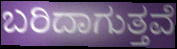
ಬರಿದಾಗುತ್ತವೆ